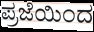
ಪ್ರಜೆಯಿಂದ